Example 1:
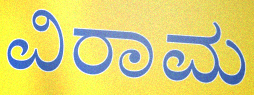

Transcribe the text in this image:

ವಿರಾಮ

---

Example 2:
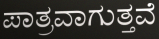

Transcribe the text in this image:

ಪಾತ್ರವಾಗುತ್ತವೆ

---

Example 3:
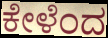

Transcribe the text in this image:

ಕೇಳೆಂದ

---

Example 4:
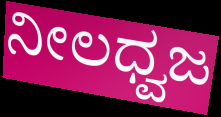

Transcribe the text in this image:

ನೀಲಧ್ವಜ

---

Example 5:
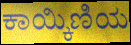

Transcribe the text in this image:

ಕಾಯ್ಕಿಣಿಯ